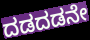
ದಡದಡನೇ